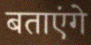
बताएंगे